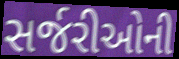
સર્જરીઓની